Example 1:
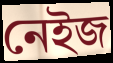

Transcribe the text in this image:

নেইজ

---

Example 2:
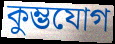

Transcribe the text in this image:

কুম্ভযোগ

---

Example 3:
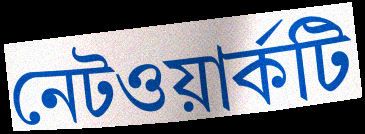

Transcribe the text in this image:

নেটওয়ার্কটি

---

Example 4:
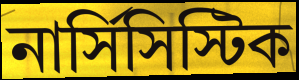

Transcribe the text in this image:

নার্সিসিস্টিক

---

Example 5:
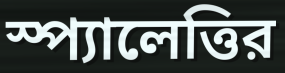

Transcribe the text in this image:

স্প্যালেত্তির